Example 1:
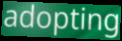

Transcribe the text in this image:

adopting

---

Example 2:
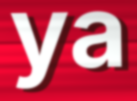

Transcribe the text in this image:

ya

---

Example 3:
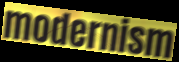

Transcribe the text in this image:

modernism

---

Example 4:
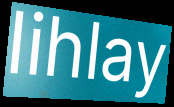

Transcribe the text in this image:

lihlay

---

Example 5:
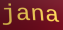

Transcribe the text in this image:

jana